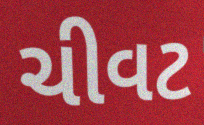
ચીવટ